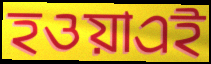
হওয়াএই